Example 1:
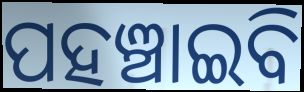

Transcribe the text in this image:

ପହଞ୍ଚାଇବି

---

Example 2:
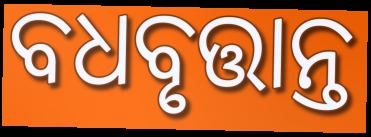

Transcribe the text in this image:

ବଧବୃତ୍ତାନ୍ତ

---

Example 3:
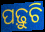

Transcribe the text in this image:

ପଢ଼ୁଚି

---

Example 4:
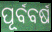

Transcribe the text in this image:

ପୂର୍ବବର୍ଷ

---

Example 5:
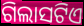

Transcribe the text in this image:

ଗିଲାସଟିଏ